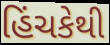
હિંચકેથી